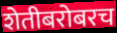
शेतीबरोबरच